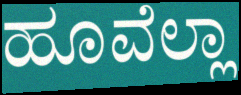
ಹೂವೆಲ್ಲಾ